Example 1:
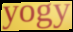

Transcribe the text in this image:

yogy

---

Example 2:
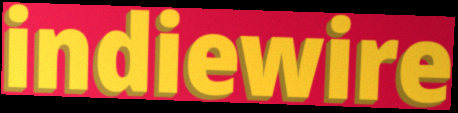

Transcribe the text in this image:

indiewire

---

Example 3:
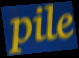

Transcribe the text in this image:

pile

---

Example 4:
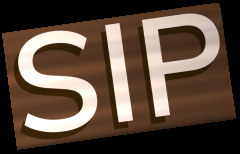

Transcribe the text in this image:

SIP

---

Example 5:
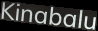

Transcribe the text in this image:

Kinabalu